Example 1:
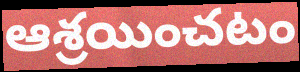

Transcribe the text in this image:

ఆశ్రయించటం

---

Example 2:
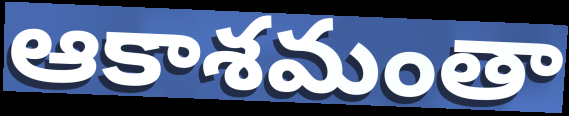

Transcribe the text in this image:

ఆకాశమంతా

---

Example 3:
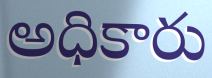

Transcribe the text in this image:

అధికారు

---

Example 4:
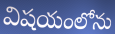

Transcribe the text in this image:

విషయంలోను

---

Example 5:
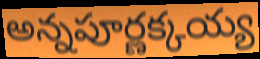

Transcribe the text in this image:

అన్నపూర్ణక్కయ్య